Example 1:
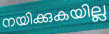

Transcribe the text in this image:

നയിക്കുകയില്ല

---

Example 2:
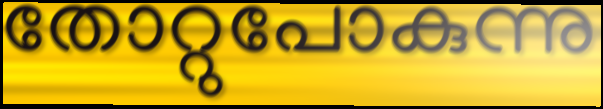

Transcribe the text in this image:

തോറ്റുപോകുന്നു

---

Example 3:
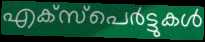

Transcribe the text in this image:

എക്സ്പെർട്ടുകൾ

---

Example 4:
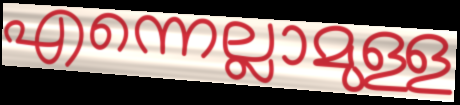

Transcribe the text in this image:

എന്നെല്ലാമുള്ള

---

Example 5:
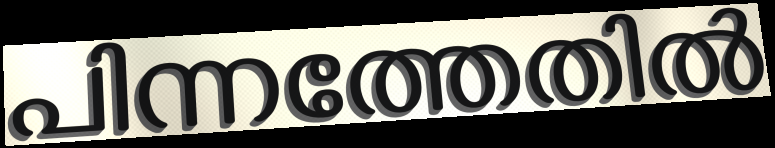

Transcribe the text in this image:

പിന്നത്തേതിൽ